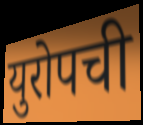
युरोपची